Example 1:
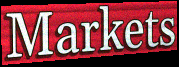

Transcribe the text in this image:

Markets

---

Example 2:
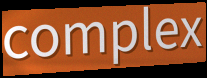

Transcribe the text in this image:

complex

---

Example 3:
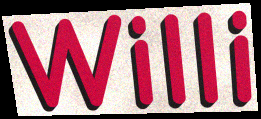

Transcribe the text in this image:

Willi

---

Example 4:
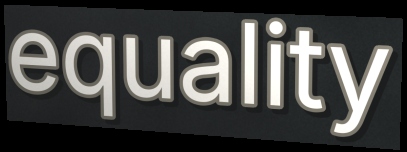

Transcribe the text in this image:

equality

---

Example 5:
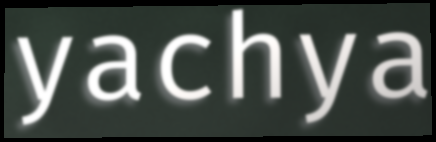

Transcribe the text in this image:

yachya